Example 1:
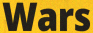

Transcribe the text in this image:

Wars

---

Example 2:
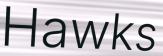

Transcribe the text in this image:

Hawks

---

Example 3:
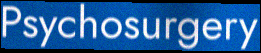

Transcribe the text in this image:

Psychosurgery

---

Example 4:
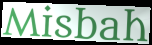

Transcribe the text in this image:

Misbah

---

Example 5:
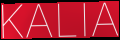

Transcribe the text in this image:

KALIA